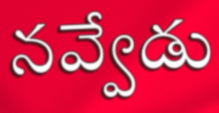
నవ్వేడు